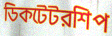
ডিকটেটরশিপ